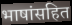
भाषांसहित